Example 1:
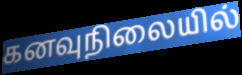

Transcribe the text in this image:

கனவுநிலையில்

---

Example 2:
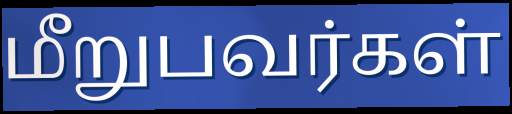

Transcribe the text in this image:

மீறுபவர்கள்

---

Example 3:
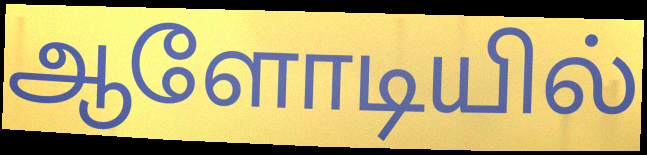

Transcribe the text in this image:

ஆளோடியில்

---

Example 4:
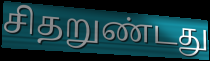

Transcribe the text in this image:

சிதறுண்டது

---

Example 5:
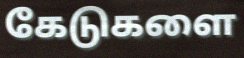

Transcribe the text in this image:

கேடுகளை